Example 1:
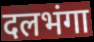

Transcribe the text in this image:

दलभंगा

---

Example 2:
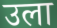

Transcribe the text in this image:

उला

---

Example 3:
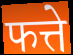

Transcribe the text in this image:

फत्ते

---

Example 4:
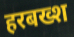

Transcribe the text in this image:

हरबख्श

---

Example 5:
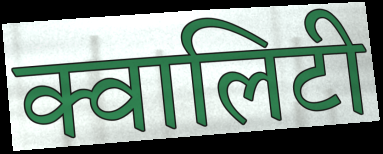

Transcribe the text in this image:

क्‍वालिटी